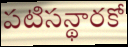
పటిసన్థారకో